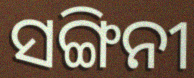
ସଙ୍ଗିନୀ